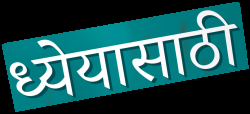
ध्येयासाठी